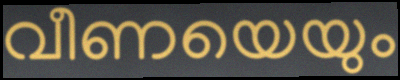
വീണയെയും